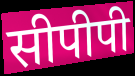
सीपीपी